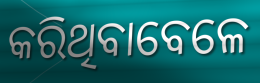
କରିଥିବାବେଳେ